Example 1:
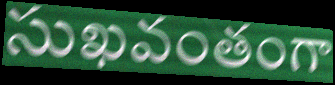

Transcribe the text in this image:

సుఖవంతంగా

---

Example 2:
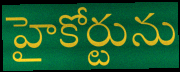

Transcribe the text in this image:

హైకోర్టును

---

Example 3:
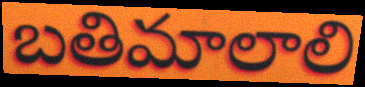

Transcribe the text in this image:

బతిమాలాలి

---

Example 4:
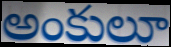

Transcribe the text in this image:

అంకులూ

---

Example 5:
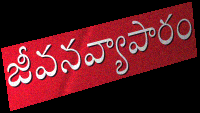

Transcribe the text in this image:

జీవనవ్యాపారం